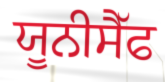
ਯੂਨੀਸੈੱਫ